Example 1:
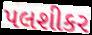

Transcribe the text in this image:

પલશીકર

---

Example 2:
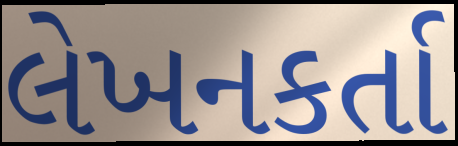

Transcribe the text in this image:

લેખનકર્તા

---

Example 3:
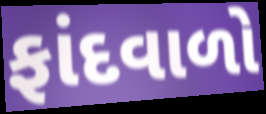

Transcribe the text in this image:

ફાંદવાળો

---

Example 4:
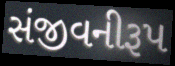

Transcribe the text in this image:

સંજીવનીરૂપ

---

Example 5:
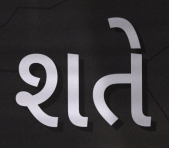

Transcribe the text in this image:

શતે